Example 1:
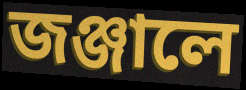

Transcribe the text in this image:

জঞ্জালে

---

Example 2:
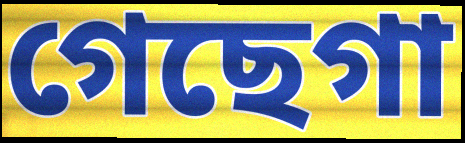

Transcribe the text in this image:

গেছেগা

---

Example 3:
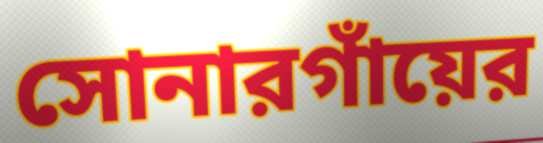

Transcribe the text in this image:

সোনারগাঁয়ের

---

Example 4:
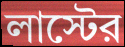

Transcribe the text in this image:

লাস্টের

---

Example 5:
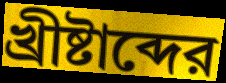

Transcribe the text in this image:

খ্রীষ্টাব্দের